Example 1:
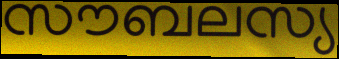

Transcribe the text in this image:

സൗബലസ്യ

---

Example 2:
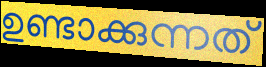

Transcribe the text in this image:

ഉണ്ടാക്കുന്നത്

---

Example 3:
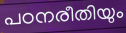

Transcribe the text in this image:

പഠനരീതിയും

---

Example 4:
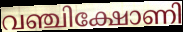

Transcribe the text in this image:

വഞ്ചിക്ഷോണി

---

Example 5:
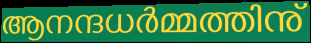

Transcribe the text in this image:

ആനന്ദധർമ്മത്തിനു്